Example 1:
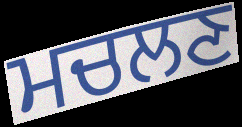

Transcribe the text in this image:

ਮਚਲਣ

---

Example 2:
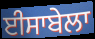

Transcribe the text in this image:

ਈਸਾਬੇਲਾ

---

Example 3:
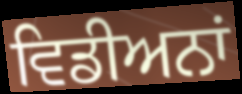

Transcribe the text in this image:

ਵਿਡੀਅਨਾਂ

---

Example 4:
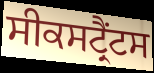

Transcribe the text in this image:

ਸੀਕਸਟ੍ਰੈਂਟਸ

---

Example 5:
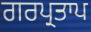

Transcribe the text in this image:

ਗਰਪ੍ਰਤਾਪ